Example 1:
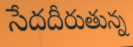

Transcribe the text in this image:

సేదదీరుతున్న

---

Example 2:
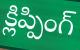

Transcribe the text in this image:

క్లిప్పింగ్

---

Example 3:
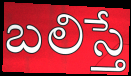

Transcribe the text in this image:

బలిస్తే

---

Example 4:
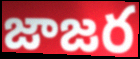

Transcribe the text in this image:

జాజర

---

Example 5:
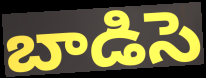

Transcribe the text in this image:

బాడిసె